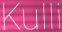
Kulli